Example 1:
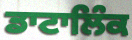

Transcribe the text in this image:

ਡਾਟਾਲਿੰਕ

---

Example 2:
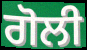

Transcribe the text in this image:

ਗੋਲੀ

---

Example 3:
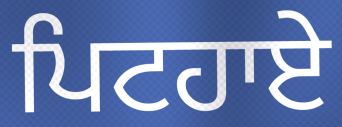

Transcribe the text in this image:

ਪਿਟਹਾਏ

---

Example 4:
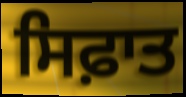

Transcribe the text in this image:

ਸਿਫ਼ਾਤ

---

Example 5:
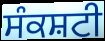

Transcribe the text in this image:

ਸੰਕਸ਼ਟੀ